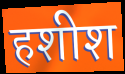
हशीश